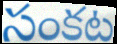
సంకట